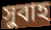
সুবাহ